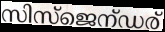
സിസ്ജെന്ഡര്